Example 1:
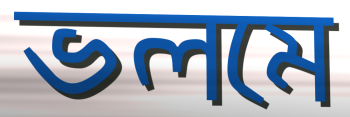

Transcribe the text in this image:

ভলমে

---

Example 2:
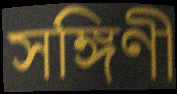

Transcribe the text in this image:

সঙ্গিণী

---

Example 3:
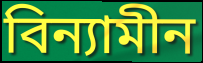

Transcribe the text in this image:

বিন্যামীন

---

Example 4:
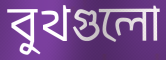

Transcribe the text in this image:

বুথগুলো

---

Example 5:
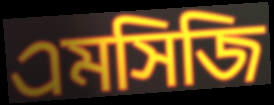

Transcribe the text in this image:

এমসিজি